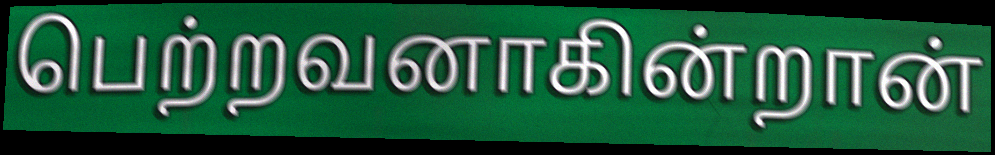
பெற்றவனாகின்றான்